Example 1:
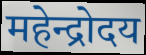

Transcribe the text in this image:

महेन्द्रोदय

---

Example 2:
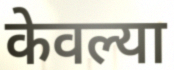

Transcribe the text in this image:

केवल्या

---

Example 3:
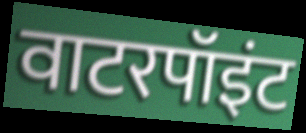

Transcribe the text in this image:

वाटरपॉइंट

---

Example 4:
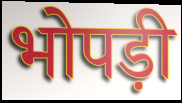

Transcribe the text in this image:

भोपड़ी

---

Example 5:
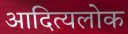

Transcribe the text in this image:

आदित्यलोक